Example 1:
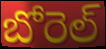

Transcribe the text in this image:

బోరెల్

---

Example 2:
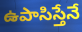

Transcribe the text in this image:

ఉపాసిస్తేనే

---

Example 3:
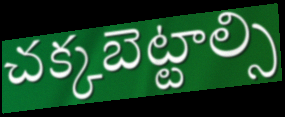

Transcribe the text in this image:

చక్కబెట్టాల్సి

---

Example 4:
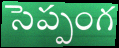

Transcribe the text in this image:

సెప్పంగ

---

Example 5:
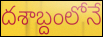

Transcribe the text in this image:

దశాబ్దంలోనే